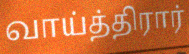
வாய்த்திரார்